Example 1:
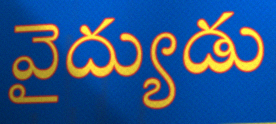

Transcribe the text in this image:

వైద్యుడు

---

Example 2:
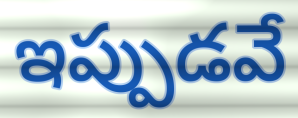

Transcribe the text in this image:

ఇప్పుడవే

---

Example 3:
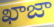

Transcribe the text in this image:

ఖాజా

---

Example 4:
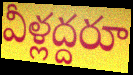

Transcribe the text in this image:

వీళ్లద్దరూ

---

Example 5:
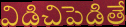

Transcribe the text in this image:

విడిచిపెడితే